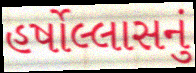
હર્ષોલ્લાસનું